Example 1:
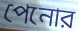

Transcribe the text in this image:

পেনোর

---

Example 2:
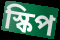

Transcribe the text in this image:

স্কিপ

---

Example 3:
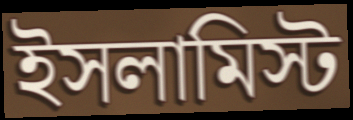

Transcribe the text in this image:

ইসলামিস্ট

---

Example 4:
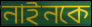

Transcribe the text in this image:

নাইনকে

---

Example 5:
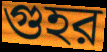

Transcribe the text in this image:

গুহর